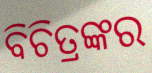
ବିଚିତ୍ରଙ୍କର